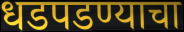
धडपडण्याचा